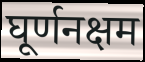
घूर्णनक्षम